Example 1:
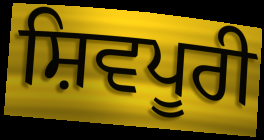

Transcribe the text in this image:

ਸ਼ਿਵਪੂਰੀ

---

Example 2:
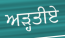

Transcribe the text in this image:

ਅੜ੍ਹਤੀਏ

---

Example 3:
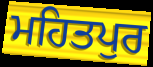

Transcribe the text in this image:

ਮਹਿਤਪੁਰ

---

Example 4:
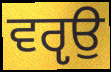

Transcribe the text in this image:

ਵਰੵਉ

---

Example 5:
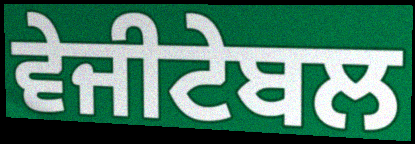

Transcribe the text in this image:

ਵੇਜੀਟੇਬਲ